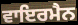
ਵਾਇਰਮੈਨ